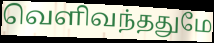
வெளிவந்ததுமே